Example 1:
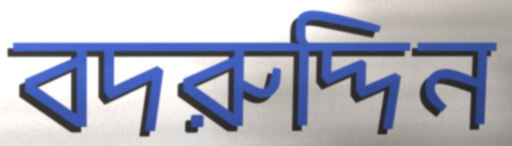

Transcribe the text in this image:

বদৰুদ্দিন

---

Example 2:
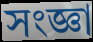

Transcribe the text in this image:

সংজ্ঞা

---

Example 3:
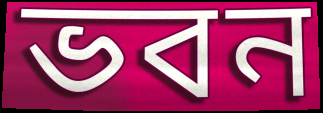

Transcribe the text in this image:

ভবন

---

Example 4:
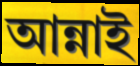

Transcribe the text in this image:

আন্নাই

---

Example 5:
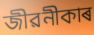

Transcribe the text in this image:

জীৱনীকাৰ